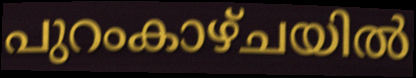
പുറംകാഴ്ചയിൽ